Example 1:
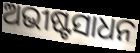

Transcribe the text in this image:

ଅଭୀଷ୍ଟସାଧନ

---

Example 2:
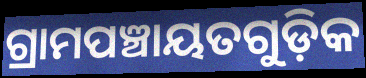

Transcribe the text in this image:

ଗ୍ରାମପଞ୍ଚାୟତଗୁଡ଼ିକ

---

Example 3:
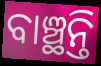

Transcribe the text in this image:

ବାଞ୍ଛନ୍ତି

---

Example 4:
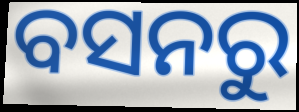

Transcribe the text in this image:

ବସନରୁ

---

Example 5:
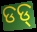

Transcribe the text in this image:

ଡଡ୍